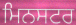
ਮਿਨਸਟਰ